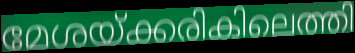
മേശയ്ക്കരികിലെത്തി